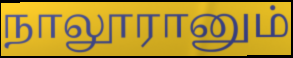
நாலூரானும்